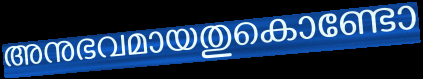
അനുഭവമായതുകൊണ്ടോ